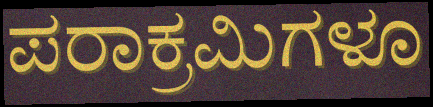
ಪರಾಕ್ರಮಿಗಳೂ